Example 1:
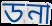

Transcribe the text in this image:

ডনা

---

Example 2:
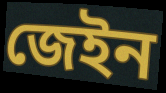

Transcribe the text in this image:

জেইন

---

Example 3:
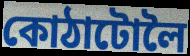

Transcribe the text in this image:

কোঠাটোলৈ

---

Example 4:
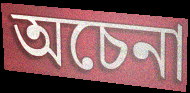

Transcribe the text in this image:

অচেনা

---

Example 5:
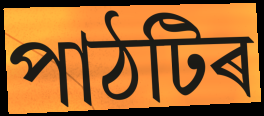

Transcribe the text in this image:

পাঠটিৰ